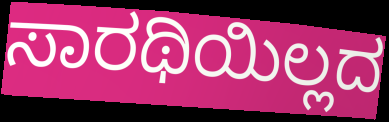
ಸಾರಥಿಯಿಲ್ಲದ